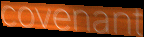
covenant